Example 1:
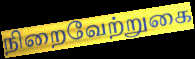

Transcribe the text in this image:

நிறைவேற்றுகை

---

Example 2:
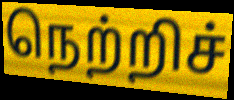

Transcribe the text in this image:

நெற்றிச்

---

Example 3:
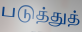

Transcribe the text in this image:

படுத்துத்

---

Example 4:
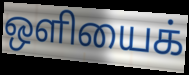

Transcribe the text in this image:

ஒளியைக்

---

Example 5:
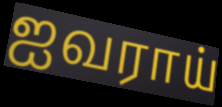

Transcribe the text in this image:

ஐவராய்